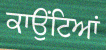
ਕਾਉਂਟਿਆਂ